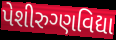
પેશીરુગ્ણવિદ્યા